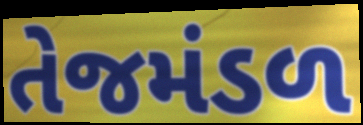
તેજમંડળ